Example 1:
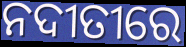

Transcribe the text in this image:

ନଦୀତୀରେ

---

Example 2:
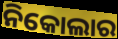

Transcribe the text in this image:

ନିକୋଲାର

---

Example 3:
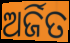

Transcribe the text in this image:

ଅର୍ଜିତ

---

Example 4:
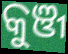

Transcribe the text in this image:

କୁଞ୍ଜ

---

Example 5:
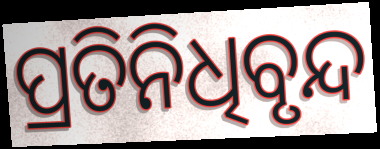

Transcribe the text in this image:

ପ୍ରତିନିଧିବୃନ୍ଦ